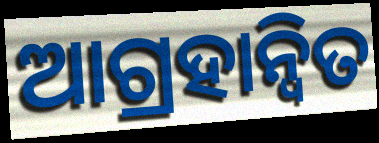
ଆଗ୍ରହାନ୍ୱିତ